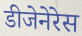
डीजेनेरेस